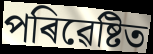
পৰিৱেষ্টিত